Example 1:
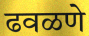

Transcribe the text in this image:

ढवळणे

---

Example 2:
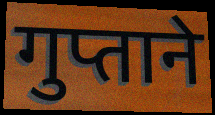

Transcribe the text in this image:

गुप्ताने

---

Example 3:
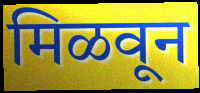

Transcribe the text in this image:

मिळवून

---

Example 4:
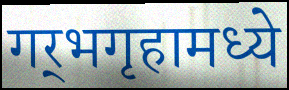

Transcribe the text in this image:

गर्भगृहामध्ये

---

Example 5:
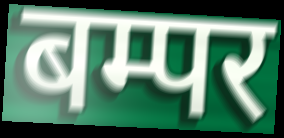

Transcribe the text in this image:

बम्पर